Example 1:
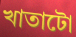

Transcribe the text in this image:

খাতাটো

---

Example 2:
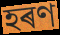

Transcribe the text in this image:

হৰণ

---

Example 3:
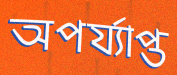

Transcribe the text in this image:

অপৰ্য্যাপ্ত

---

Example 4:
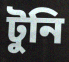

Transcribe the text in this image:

টুনি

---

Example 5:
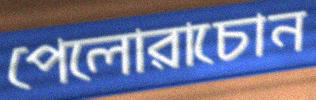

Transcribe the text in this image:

পেলোৱাচোন